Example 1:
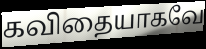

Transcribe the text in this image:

கவிதையாகவே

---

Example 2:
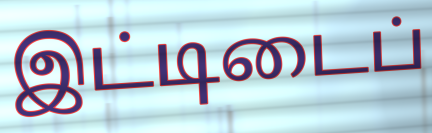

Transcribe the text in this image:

இட்டிடைப்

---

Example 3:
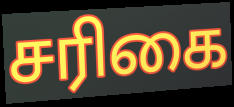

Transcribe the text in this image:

சரிகை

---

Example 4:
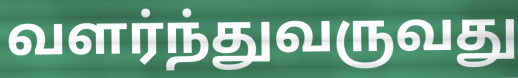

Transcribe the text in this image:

வளர்ந்துவருவது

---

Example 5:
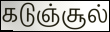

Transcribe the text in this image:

கடுஞ்சூல்